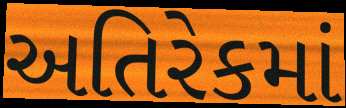
અતિરેકમાં